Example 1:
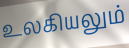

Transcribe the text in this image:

உலகியலும்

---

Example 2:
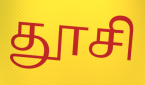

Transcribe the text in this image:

தூசி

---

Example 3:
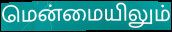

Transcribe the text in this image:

மென்மையிலும்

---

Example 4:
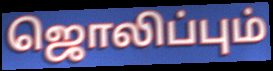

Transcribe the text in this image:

ஜொலிப்பும்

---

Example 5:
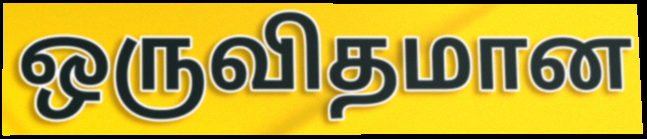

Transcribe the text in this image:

ஒருவிதமான